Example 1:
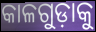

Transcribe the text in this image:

କାଳଗୁଡ଼ାକୁ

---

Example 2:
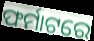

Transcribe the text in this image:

ଫର୍ମାଟରେ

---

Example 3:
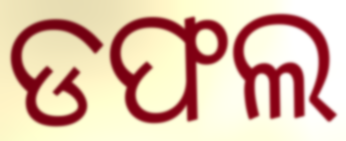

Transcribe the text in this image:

ଡଫଲ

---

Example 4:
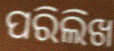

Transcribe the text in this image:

ପରିଲିଖ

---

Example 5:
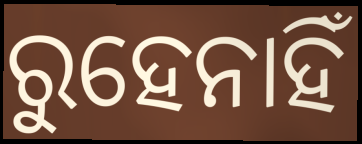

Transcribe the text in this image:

ରୁହେନାହିଁ